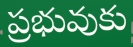
ప్రభువుకు